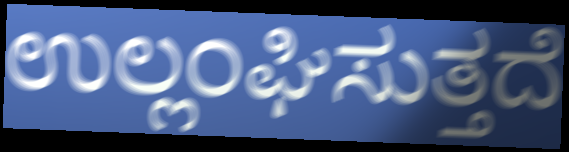
ಉಲ್ಲಂಘಿಸುತ್ತದೆ